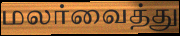
மலர்வைத்து